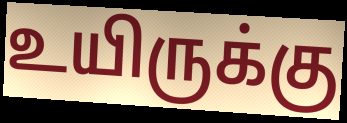
உயிருக்கு